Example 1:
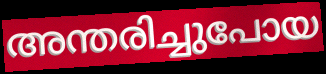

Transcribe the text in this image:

അന്തരിച്ചുപോയ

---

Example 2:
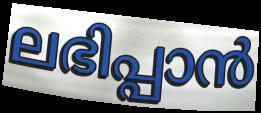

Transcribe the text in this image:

ലഭിപ്പാൻ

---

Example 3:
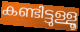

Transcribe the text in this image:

കണ്ടിട്ടുള്ളൂ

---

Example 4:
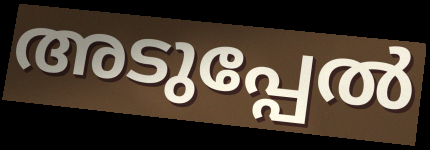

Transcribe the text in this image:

അടുപ്പേൽ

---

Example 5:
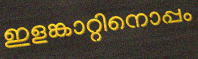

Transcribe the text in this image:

ഇളങ്കാറ്റിനൊപ്പം